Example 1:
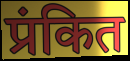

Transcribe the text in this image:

प्रंकित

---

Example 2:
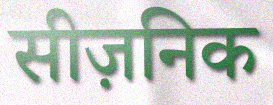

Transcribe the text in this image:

सीज़निक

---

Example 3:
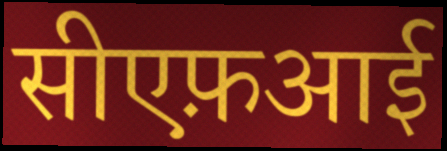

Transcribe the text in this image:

सीएफ़आई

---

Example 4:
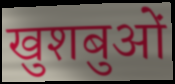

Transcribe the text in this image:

खुशबुओं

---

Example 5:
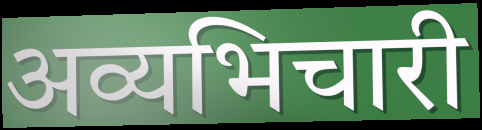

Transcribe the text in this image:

अव्यभिचारी